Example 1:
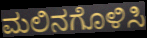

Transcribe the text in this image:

ಮಲಿನಗೊಳಿಸಿ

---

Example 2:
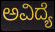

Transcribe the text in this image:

ಅವಿದ್ಯೆ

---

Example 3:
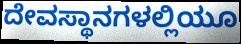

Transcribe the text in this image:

ದೇವಸ್ಥಾನಗಳಲ್ಲಿಯೂ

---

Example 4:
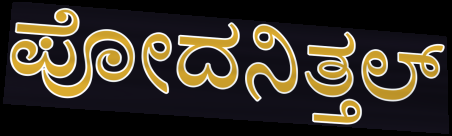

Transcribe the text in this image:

ಪೋದನಿತ್ತಲ್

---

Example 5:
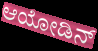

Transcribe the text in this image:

ಆಯೋಡಿನ್